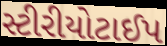
સ્ટીરીયોટાઈપ